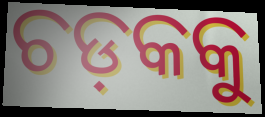
ଚଡ଼କକୁ